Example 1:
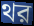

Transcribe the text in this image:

থর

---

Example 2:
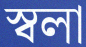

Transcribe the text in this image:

স্বলা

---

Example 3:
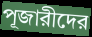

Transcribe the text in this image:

পূজারীদের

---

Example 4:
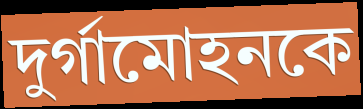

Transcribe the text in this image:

দুর্গামোহনকে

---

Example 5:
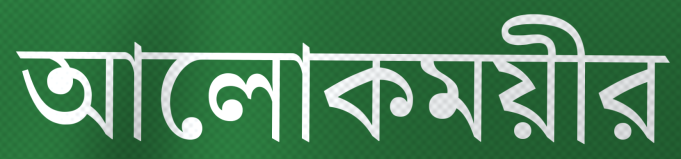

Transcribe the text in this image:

আলোকময়ীর